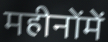
महीनोंमें